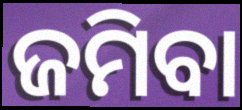
ଜମିବା